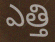
ఎత్తి